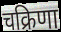
चक्रिणा